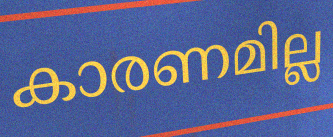
കാരണമില്ല